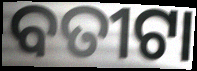
ବତୀଟା